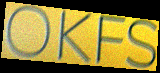
OKFS